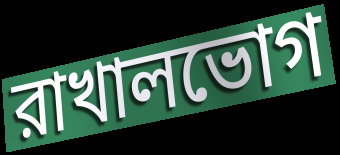
রাখালভোগ